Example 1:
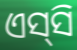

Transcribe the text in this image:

ଏସ୍‌ସି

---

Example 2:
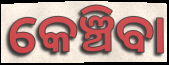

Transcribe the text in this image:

କେଞ୍ଚିବା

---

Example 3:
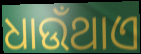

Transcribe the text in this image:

ଧାଉଁଥାଏ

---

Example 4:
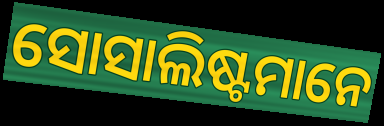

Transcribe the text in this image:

ସୋସାଲିଷ୍ଟମାନେ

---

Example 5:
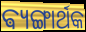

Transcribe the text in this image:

ଵ୍ୟଙ୍ଗାର୍ଥକ